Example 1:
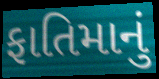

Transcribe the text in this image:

ફાતિમાનું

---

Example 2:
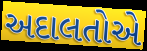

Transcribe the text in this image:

અદાલતોએ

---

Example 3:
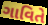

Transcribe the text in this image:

ગાવિતે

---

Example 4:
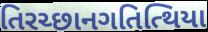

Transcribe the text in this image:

તિરચ્છાનગતિત્થિયા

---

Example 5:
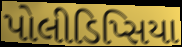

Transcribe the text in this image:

પોલીડિપ્સિયા